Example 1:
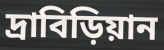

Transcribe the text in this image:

দ্রাবিড়িয়ান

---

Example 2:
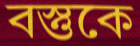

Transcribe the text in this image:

বস্তুকে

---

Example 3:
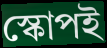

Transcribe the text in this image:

স্কোপই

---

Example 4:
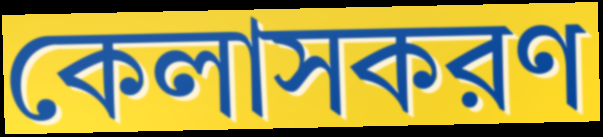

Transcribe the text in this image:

কেলাসকরণ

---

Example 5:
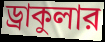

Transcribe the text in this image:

ড্রাকুলার